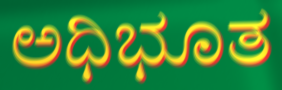
ಅಧಿಭೂತ